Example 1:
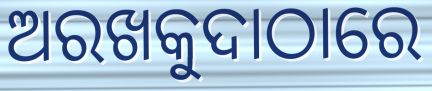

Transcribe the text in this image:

ଅରଖକୁଦାଠାରେ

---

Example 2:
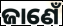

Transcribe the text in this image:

ଜାଣେଁ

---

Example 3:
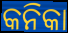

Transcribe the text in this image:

କନିକା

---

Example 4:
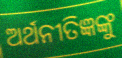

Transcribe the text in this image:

ଅର୍ଥନୀତିଜ୍ଞଙ୍କୁ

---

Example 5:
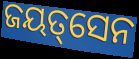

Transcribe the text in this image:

ଜୟତ୍‌ସେନ